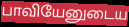
பாவியேனுடைய